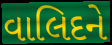
વાલિદને